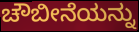
ಚೌಬೀನೆಯನ್ನು